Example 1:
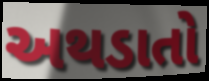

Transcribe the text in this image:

અથડાતો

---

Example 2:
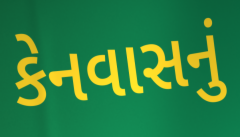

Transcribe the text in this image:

કેનવાસનું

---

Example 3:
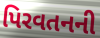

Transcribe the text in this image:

પિરવતનની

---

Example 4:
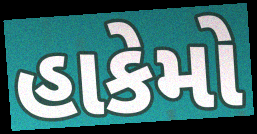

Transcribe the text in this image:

હાકેમો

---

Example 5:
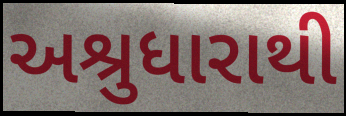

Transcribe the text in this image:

અશ્રુધારાથી